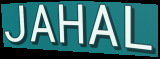
JAHAL